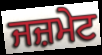
ਜਜ਼ਮੇਟ